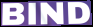
BIND